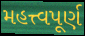
મહત્ત્વપૂર્ણ